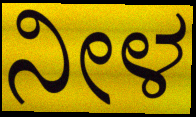
ನೀಳ